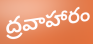
ద్రవాహారం